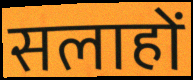
सलाहों